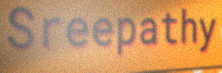
Sreepathy